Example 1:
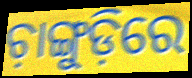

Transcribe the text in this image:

ଚ଼ାଙ୍ଗୁଡ଼ିରେ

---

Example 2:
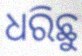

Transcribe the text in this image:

ଧରିଛୁ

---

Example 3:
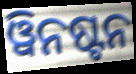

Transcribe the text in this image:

ୱିନଷ୍ଟନ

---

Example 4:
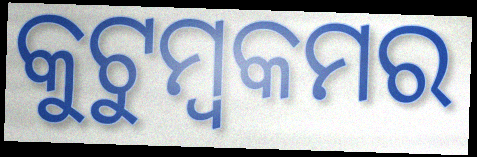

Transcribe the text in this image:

କୁଟୁମ୍ବକମର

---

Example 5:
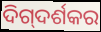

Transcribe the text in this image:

ଦିଗ୍‍ଦର୍ଶକର